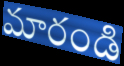
మారండి